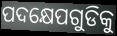
ପଦକ୍ଷେପଗୁଡିକୁ